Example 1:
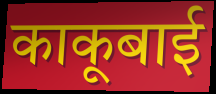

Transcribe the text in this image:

काकूबाई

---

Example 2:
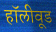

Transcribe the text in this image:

हॉलीवूड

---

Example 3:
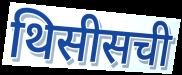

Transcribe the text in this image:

थिसीसची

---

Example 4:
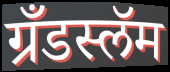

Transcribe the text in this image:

ग्रँडस्लॅम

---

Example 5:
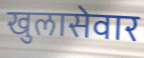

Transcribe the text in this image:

खुलासेवार